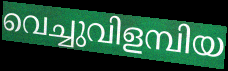
വെച്ചുവിളമ്പിയ